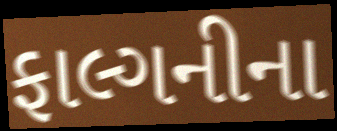
ફાલ્ગનીના